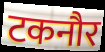
टकनौर